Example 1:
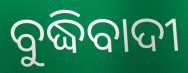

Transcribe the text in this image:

ବୁଦ୍ଧିବାଦୀ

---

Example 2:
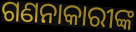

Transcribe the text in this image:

ଗଣନାକାରୀଙ୍କ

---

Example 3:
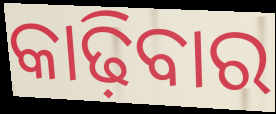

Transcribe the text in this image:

କାଢ଼ିବାର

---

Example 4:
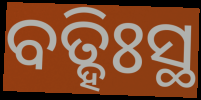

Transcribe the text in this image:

ବତ୍ହିଃସ୍ଥ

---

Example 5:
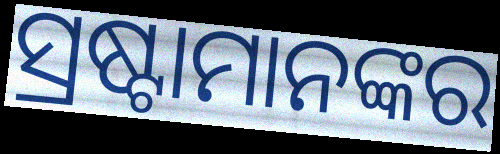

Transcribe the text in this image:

ସ୍ରଷ୍ଟାମାନଙ୍କର